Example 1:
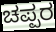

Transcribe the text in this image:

ಚಪ್ಪರ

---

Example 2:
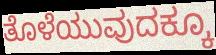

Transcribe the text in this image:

ತೊಳೆಯುವುದಕ್ಕೂ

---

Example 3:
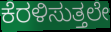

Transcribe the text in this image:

ಕೆರಳಿಸುತ್ತಲೇ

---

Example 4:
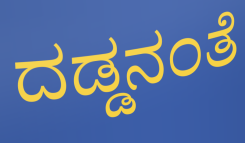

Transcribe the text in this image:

ದಡ್ಡನಂತೆ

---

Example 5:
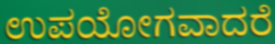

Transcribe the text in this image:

ಉಪಯೋಗವಾದರೆ